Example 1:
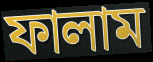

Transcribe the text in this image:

ফালাম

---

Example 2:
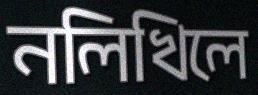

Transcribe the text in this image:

নলিখিলে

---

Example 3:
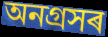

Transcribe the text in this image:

অনগ্ৰসৰ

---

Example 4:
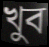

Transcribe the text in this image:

খুব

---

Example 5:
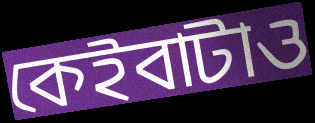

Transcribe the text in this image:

কেইবাটাও